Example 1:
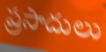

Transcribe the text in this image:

ప్రసాదులు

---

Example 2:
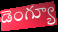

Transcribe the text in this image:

డెంగ్యూ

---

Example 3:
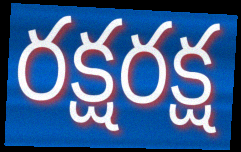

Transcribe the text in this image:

రక్షరక్ష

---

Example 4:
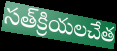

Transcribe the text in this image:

సత్‌క్రియలచేత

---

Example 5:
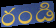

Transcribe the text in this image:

రండి